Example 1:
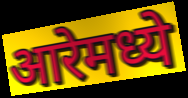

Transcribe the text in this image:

आरेमध्ये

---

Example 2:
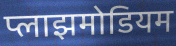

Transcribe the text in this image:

प्लाझमोडियम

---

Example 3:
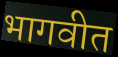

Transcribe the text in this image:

भागवीत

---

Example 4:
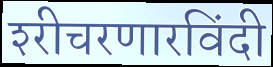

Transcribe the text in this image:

श्रीचरणारविंदी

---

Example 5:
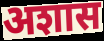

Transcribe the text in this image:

अशास